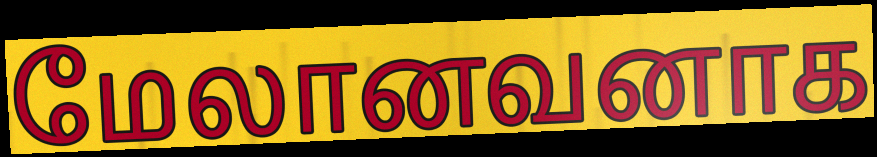
மேலானவனாக